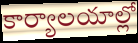
కార్యాలయాల్లో